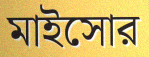
মাইসোর